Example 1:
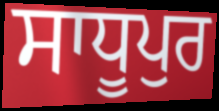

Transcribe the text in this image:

ਸਾਧੂਪੁਰ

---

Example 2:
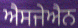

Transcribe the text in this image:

ਐਸਜੇਐਨ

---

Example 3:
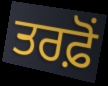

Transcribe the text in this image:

ਤਰਫ਼ੋਂ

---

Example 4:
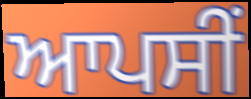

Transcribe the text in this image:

ਆਪਸੀਂ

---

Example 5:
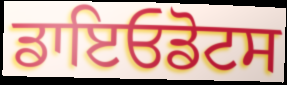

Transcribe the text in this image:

ਡਾਇਓਡੋਟਸ